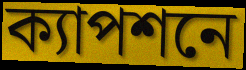
ক্যাপশনে